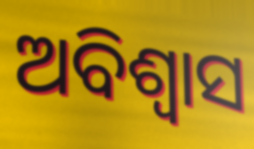
ଅବିଶ୍ବାସ